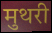
मुथरी